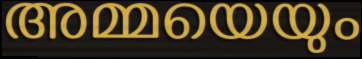
അമ്മയെയും